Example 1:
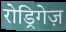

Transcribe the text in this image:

रोड्रिगेज़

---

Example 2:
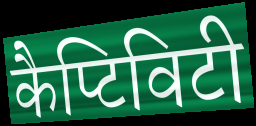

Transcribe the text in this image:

कैप्टिविटी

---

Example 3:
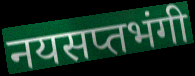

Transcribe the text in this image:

नयसप्तभंगी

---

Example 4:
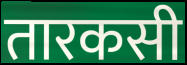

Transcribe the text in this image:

तारकसी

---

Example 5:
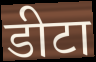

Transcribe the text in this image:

डीटा